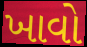
ખાવો